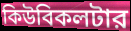
কিউবিকলটার